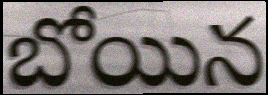
బోయిన